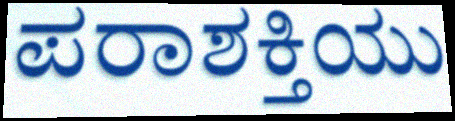
ಪರಾಶಕ್ತಿಯು